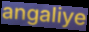
angaliye